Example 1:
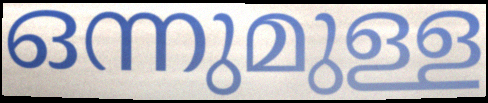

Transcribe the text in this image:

ഒന്നുമുള്ള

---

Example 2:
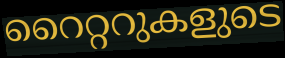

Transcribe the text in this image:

റൈറ്ററുകളുടെ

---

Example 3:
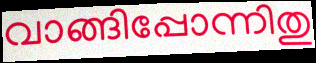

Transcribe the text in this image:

വാങ്ങിപ്പോന്നിതു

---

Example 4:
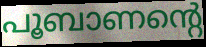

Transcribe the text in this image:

പൂബാണന്റെ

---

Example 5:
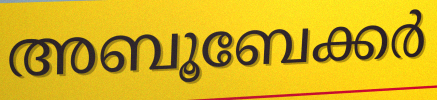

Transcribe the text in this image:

അബൂബേക്കർ